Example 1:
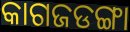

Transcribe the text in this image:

କାଗଜଡଙ୍ଗା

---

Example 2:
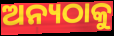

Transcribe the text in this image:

ଅନ୍ୟଠାକୁ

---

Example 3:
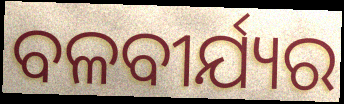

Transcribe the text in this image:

ବଳବୀର୍ଯ୍ୟର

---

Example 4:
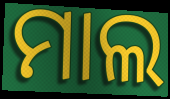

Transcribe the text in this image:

ମାଲ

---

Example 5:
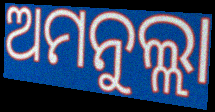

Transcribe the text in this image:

ଅମନୁଲ୍ଲା